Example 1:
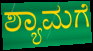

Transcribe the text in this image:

ಶ್ಯಾಮಗೆ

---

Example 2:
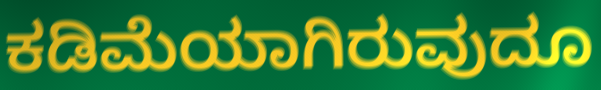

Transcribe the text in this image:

ಕಡಿಮೆಯಾಗಿರುವುದೂ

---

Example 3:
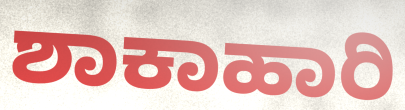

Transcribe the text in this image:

ಶಾಕಾಹಾರಿ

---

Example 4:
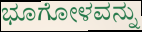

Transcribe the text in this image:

ಭೂಗೋಳವನ್ನು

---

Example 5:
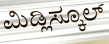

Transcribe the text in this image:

ಮಿಡ್ಲಿಸ್ಕೂಲ್